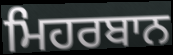
ਮਿਹਰਬਾਨ